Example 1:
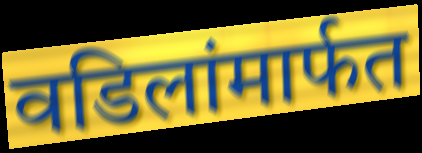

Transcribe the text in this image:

वडिलांमार्फत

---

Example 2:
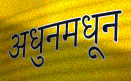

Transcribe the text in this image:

अधुनमधून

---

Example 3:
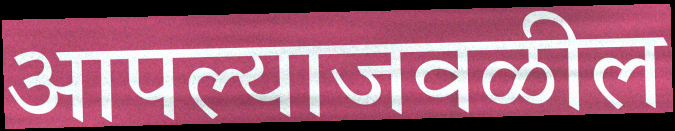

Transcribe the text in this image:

आपल्याजवळील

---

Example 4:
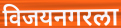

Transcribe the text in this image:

विजयनगरला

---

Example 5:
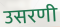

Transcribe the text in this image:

उसरणी